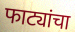
फाट्यांचा